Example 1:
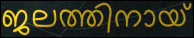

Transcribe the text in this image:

ജലത്തിനായ്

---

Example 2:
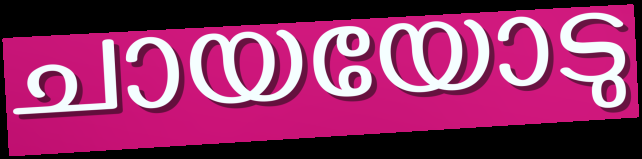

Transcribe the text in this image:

ചായയോടു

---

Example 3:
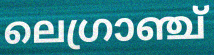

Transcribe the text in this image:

ലെഗ്രാഞ്ച്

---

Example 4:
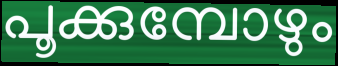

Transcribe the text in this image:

പൂക്കുമ്പോഴും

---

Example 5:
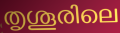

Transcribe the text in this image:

തൃശൂരിലെ